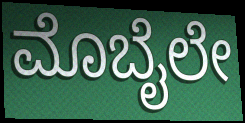
ಮೊಬೈಲೇ